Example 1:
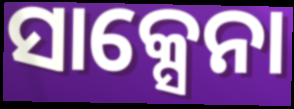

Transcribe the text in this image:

ସାକ୍ସେନା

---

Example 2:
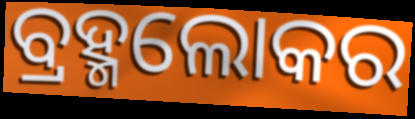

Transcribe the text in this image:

ବ୍ରହ୍ମଲୋକର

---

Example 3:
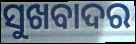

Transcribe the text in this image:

ସୁଖବାଦର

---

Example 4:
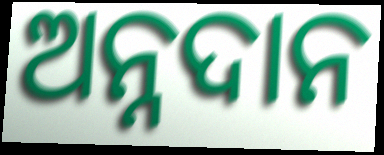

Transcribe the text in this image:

ଅନ୍ନଦାନ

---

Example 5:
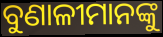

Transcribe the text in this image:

ବୁଣାଳୀମାନଙ୍କୁ